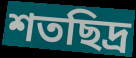
শতছিদ্র